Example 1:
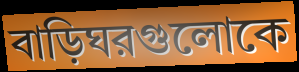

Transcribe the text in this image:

বাড়িঘরগুলোকে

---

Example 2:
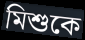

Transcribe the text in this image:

মিশুকে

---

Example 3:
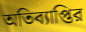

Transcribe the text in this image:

অতিব্যাপ্তির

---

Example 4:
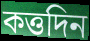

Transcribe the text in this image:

কত্তদিন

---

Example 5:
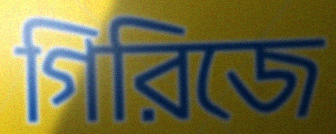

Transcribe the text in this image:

গিরিজে